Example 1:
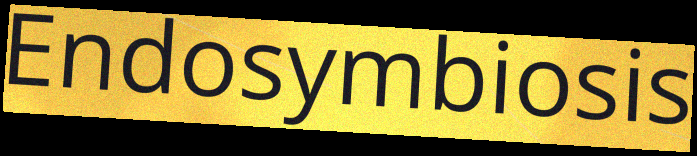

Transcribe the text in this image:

Endosymbiosis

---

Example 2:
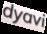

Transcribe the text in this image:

dyavi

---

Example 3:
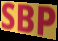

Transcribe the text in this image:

SBP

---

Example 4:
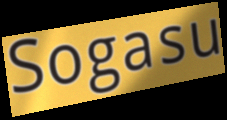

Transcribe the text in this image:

Sogasu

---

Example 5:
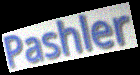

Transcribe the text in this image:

Pashler